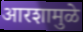
आरशामुळे